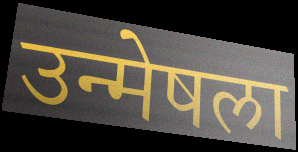
उन्मेषला